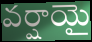
వర్షాయై